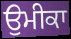
ਉਮੀਕਾ